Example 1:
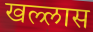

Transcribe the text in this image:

खल्लास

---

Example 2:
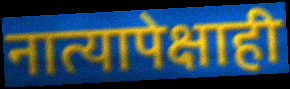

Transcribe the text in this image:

नात्यापेक्षाही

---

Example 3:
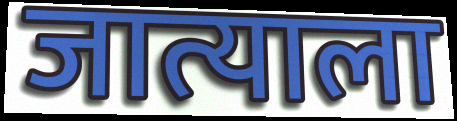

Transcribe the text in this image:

जात्याला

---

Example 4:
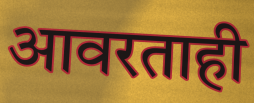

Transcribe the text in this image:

आवरताही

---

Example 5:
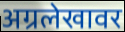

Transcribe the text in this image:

अग्रलेखावर